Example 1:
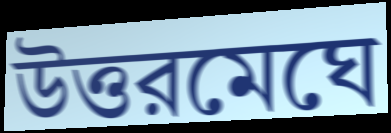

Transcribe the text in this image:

উত্তরমেঘে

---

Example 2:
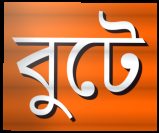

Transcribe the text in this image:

বুটে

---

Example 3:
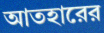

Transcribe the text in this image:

আতহারের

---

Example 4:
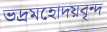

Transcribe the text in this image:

ভদ্রমহোদয়বৃন্দ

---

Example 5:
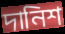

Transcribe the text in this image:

দানিশ